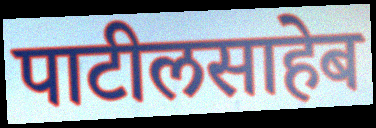
पाटीलसाहेब